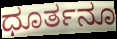
ಧೂರ್ತನೂ